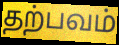
தற்பவம்